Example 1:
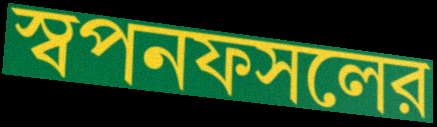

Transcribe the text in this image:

স্বপনফসলের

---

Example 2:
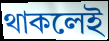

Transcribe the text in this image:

থাকলেই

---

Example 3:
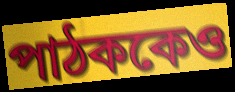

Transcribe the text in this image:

পাঠককেও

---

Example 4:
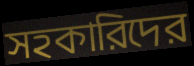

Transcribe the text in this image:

সহকারিদের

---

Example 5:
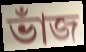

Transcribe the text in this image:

ভাঁজ